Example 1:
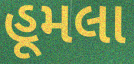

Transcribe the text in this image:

હૂમલા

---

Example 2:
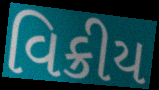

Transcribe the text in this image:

વિક્રીય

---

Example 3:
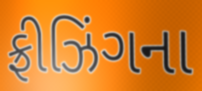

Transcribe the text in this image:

ફ્રીઝિંગના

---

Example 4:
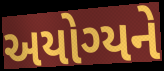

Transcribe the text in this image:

અયોગ્યને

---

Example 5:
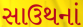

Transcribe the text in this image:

સાઉથનાં